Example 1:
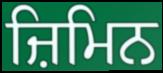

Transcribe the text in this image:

ਜ਼ਿਮਿਨ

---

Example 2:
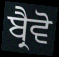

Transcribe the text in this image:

ਬ੍ਰੈਵੋ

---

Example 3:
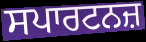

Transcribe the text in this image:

ਸਪਾਰਟਨਜ਼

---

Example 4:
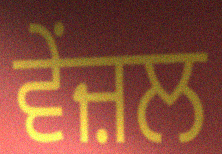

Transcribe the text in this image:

ਵੇਂਜ਼ਲ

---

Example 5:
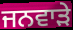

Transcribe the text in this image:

ਜਨਵਾੜੇ